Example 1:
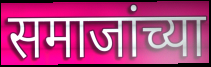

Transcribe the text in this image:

समाजांच्या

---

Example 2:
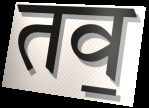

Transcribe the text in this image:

तव॒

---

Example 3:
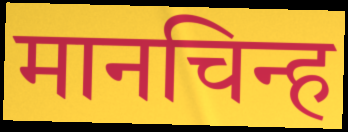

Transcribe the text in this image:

मानचिन्ह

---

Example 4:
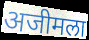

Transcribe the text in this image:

अजीमला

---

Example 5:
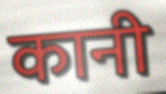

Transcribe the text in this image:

कानी